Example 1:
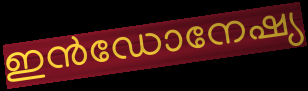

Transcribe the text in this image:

ഇൻഡോനേഷ്യ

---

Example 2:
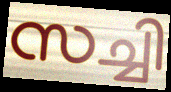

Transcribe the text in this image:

സച്ചി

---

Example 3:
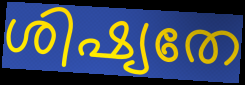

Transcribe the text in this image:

ശിഷ്യതേ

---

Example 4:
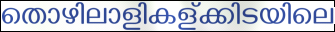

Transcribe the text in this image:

തൊഴിലാളികള്ക്കിടയിലെ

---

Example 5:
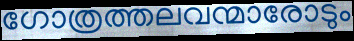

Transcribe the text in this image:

ഗോത്രത്തലവന്മാരോടും